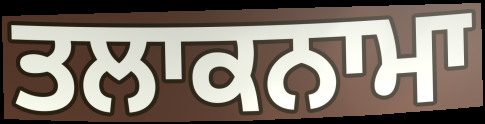
ਤਲਾਕਨਾਮਾ